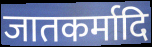
जातकर्मादि